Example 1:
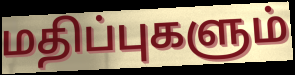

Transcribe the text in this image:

மதிப்புகளும்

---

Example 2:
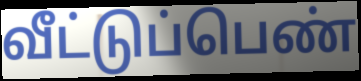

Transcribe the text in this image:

வீட்டுப்பெண்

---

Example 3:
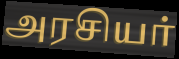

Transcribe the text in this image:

அரசியர்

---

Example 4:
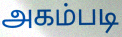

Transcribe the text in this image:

அகம்படி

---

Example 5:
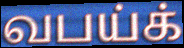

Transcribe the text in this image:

வபய்க்